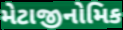
મેટાજીનોમિક